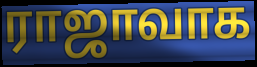
ராஜாவாக